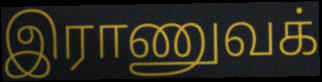
இராணுவக்